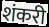
शंकरी